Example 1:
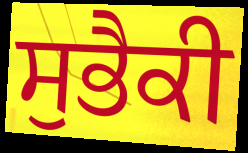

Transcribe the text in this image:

ਸੁਭੈਕੀ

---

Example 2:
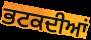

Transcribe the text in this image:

ਭਟਕਦੀਆਂ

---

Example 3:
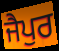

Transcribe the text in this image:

ਜੈਪੁਰ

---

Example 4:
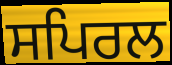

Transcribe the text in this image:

ਸਪਿਰਲ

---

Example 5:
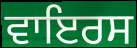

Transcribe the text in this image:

ਵਾਇਰਸ